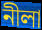
নীলা